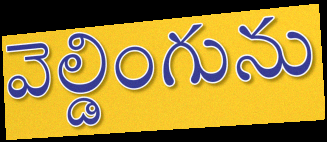
వెల్డింగును